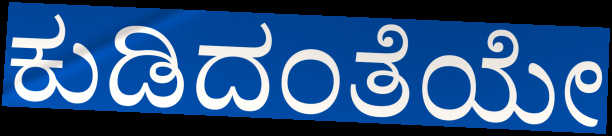
ಕುಡಿದಂತೆಯೇ